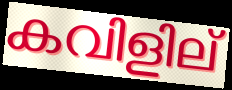
കവിളില്